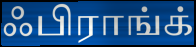
ஃபிராங்க்